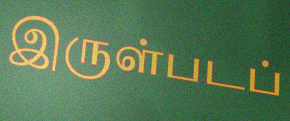
இருள்படப்